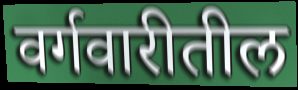
वर्गवारीतील